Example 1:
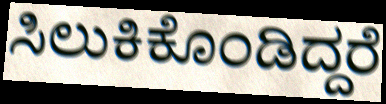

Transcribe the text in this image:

ಸಿಲುಕಿಕೊಂಡಿದ್ದರೆ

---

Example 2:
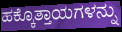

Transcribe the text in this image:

ಹಕ್ಕೊತ್ತಾಯಗಳನ್ನು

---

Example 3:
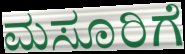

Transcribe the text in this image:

ಮಸೂರಿಗೆ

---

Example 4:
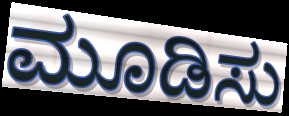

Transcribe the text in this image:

ಮೂಡಿಸು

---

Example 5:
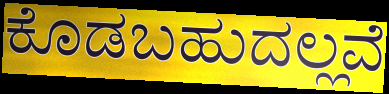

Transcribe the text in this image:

ಕೊಡಬಹುದಲ್ಲವೆ